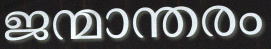
ജന്മാന്തരം